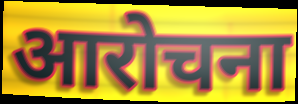
आरोचना